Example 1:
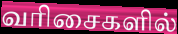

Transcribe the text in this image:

வரிசைகளில்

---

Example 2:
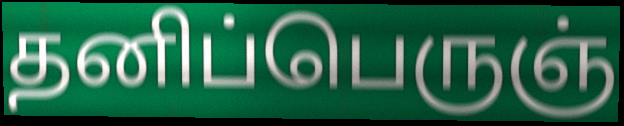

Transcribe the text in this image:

தனிப்பெருஞ்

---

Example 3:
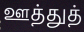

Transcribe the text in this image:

ஊத்துத்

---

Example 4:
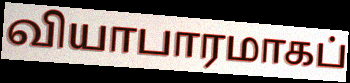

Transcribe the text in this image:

வியாபாரமாகப்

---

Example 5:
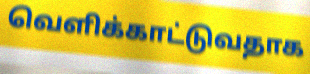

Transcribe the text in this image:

வெளிக்காட்டுவதாக